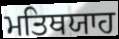
ਮਤਿਥਯਾਹ